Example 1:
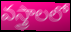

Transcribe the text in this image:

వస్త్రాలలో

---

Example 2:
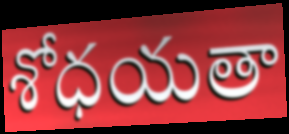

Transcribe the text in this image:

శోధయతా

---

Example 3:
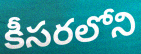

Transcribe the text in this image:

కీసరలోని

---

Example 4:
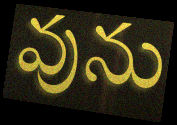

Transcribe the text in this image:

వును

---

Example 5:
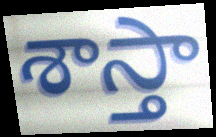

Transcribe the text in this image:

శాస్తా